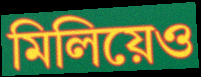
মিলিয়েও